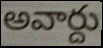
అవార్దు